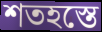
শতহস্তে